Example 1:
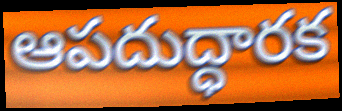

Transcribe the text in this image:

ఆపదుద్ధారక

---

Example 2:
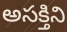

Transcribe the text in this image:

అసక్తిని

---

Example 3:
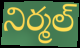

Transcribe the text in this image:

నిర్మల్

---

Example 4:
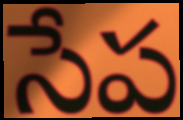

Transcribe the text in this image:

సేప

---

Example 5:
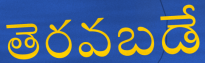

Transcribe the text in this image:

తెరవబడే